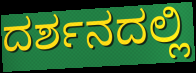
ದರ್ಶನದಲ್ಲಿ